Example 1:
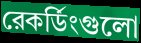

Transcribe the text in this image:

রেকর্ডিংগুলো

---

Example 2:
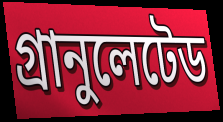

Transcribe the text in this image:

গ্রানুলেটেড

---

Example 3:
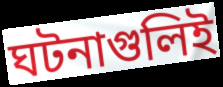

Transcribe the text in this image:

ঘটনাগুলিই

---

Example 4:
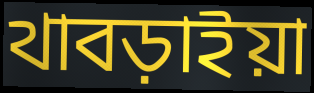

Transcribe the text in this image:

থাবড়াইয়া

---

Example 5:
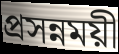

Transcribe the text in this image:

প্রসন্নময়ী